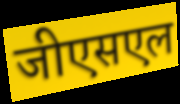
जीएसएल